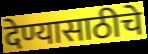
देण्यासाठीचे